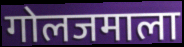
गोलजमाला